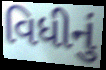
વિધીનું